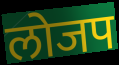
लोजप